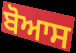
ਬੋਆਸ